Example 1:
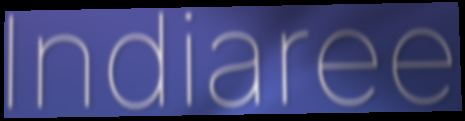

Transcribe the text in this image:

Indiaree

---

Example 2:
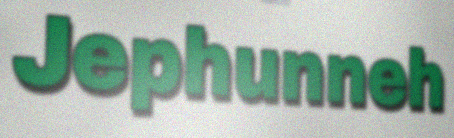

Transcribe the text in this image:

Jephunneh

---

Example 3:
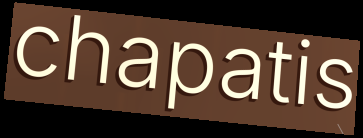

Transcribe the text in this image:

chapatis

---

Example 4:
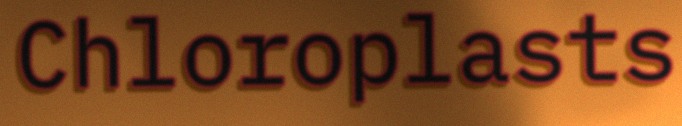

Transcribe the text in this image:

Chloroplasts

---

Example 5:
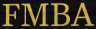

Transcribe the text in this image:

FMBA